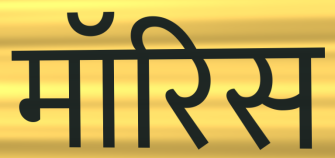
मॉरिस